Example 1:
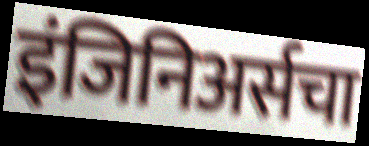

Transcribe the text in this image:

इंजिनिअर्सचा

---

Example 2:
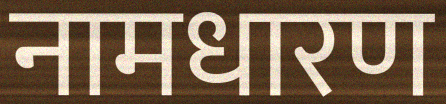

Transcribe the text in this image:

नामधारण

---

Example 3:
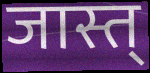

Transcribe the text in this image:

जास्त्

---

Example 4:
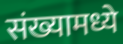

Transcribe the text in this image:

संख्यामध्ये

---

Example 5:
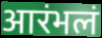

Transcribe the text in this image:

आरंभलं